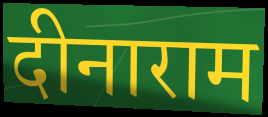
दीनाराम